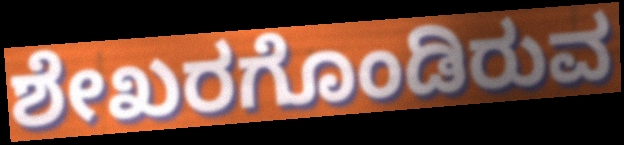
ಶೇಖರಗೊಂಡಿರುವ